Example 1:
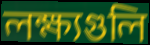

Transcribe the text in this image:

লক্ষ্যগুলি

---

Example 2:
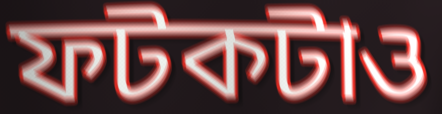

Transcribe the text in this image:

ফটকটাও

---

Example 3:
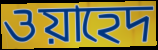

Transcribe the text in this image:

ওয়াহেদ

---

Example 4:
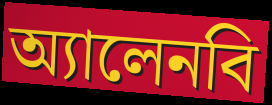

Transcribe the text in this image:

অ্যালেনবি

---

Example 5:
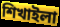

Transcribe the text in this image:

শিখাইলা